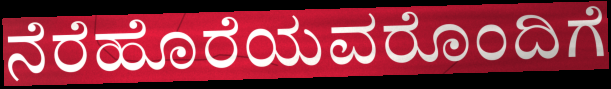
ನೆರೆಹೊರೆಯವರೊಂದಿಗೆ